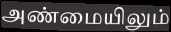
அண்மையிலும்